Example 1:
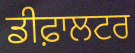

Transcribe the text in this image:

ਡੀਫ਼ਾਲਟਰ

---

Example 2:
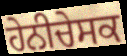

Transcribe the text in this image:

ਹੇਨੀਚੇਸਕ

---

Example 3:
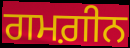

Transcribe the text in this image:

ਗਮਗ਼ੀਨ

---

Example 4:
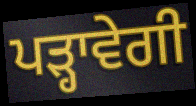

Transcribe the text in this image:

ਪੜ੍ਹਾਵੇਗੀ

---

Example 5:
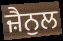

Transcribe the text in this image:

ਜ਼ੈਨੁਲ